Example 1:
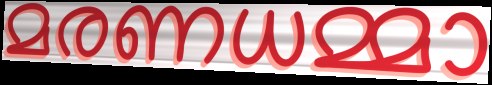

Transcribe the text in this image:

മരണധമ്മാ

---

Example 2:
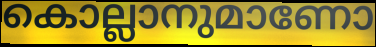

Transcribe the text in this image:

കൊല്ലാനുമാണോ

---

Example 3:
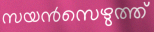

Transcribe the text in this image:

സയൻസെഴുത്ത്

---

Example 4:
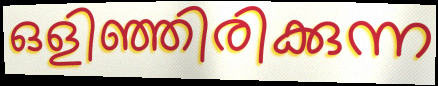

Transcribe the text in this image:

ഒളിഞ്ഞിരിക്കുന്ന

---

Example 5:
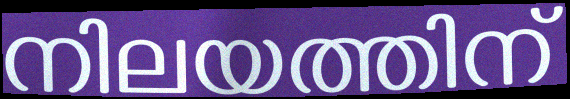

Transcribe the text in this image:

നിലയത്തിന്